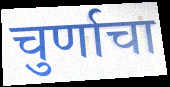
चुर्णाचा